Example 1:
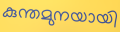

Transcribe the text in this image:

കുന്തമുനയായി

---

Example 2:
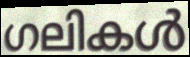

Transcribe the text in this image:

ഗലികൾ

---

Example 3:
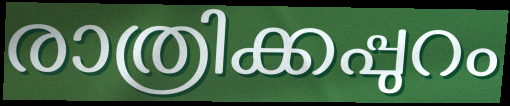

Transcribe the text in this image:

രാത്രിക്കപ്പുറം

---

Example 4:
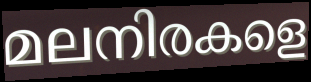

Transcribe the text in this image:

മലനിരകളെ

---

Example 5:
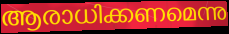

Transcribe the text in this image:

ആരാധിക്കണമെന്നു